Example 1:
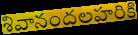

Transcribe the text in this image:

శివానందలహరికి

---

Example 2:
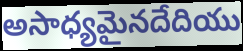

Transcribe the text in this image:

అసాధ్యమైనదేదియు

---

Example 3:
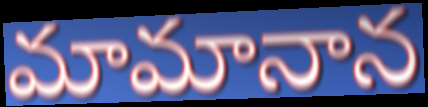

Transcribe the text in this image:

మామానాన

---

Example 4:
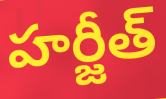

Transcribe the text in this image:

హర్జీత్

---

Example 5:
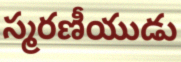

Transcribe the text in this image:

స్మరణీయుడు